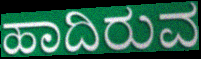
ಹಾದಿರುವ